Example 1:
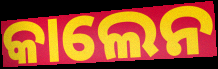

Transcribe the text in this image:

କାଲେନ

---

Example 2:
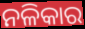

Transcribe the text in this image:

ନଳିକାର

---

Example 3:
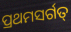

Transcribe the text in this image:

ପ୍ରଥମସର୍ଗତ୍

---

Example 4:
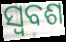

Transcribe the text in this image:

ସ୍ଵବଶ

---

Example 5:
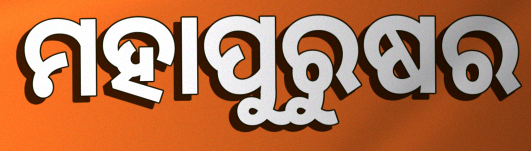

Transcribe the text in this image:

ମହାପୁରୁଷର